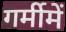
गर्मीमें